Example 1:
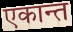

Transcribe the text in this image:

एकान्त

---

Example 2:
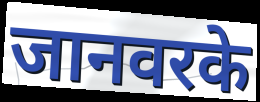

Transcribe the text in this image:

जानवरके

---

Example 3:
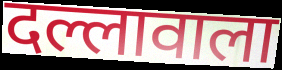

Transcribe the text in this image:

दल्लावाला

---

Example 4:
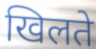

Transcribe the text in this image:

खिलते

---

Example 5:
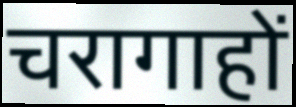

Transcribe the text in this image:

चरागाहों